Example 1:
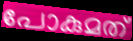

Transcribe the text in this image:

പോകുമത്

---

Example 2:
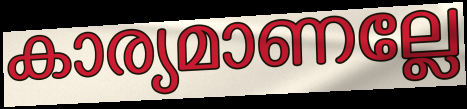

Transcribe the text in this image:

കാര്യമാണല്ലേ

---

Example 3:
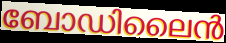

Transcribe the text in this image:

ബോഡിലൈൻ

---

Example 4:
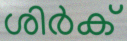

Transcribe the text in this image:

ശിർക്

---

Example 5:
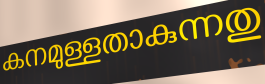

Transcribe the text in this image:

കനമുള്ളതാകുന്നതു